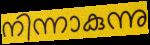
നിന്നാകുന്നു